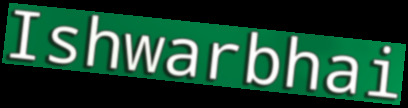
Ishwarbhai